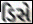
ડિસે